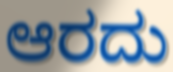
ಆರದು